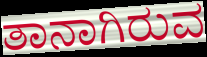
ತಾನಾಗಿರುವ